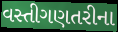
વસ્તીગણતરીના